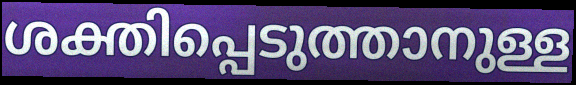
ശക്തിപ്പെടുത്താനുള്ള